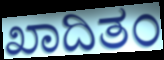
ಖಾದಿತಂ